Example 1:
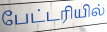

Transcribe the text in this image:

பேட்டரியில்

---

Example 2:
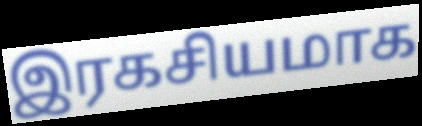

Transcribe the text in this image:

இரகசியமாக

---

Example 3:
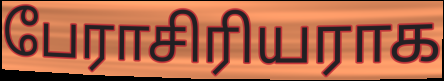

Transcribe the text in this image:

பேராசிரியராக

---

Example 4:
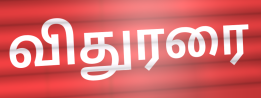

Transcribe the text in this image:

விதுரரை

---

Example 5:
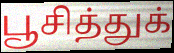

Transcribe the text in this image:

பூசித்துக்